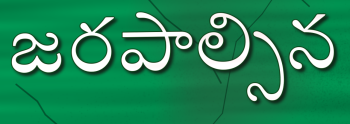
జరపాల్సిన